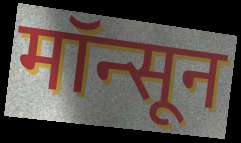
मॉन्सून